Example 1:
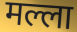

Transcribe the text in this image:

मल्ला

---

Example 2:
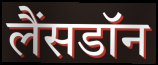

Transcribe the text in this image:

लैंसडॉन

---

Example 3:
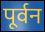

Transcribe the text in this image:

पूर्वन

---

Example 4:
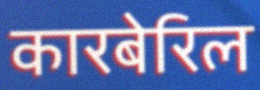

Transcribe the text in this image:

कारबेरिल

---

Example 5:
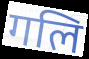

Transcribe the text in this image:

गलि